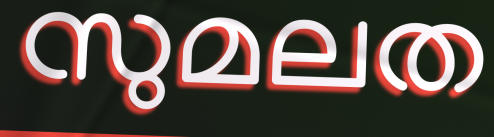
സുമലത